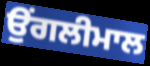
ਉਂਗਲੀਮਾਲ